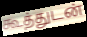
கூத்துடன்